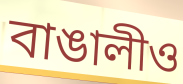
বাঙালীও